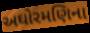
અઘોરમણિના